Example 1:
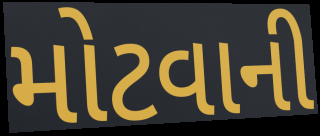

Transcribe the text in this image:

મોટવાની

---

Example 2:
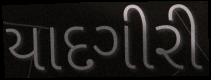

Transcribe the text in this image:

યાદગીરી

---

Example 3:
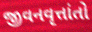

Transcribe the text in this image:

જીવનવૃત્તાંતો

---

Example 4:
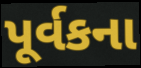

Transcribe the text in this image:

પૂર્વકના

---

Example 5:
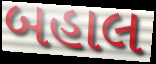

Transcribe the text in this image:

બહાલ